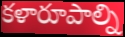
కళారూపాల్ని